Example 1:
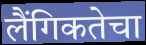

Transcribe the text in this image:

लैंगिकतेचा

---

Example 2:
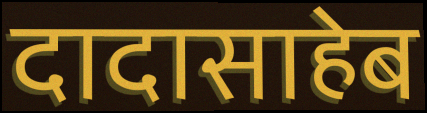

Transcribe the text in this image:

दादासाहेब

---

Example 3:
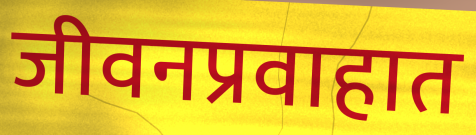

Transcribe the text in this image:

जीवनप्रवाहात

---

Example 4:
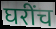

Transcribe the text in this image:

घरींच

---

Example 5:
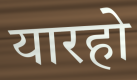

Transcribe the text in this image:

यारहो